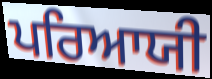
ਪਰਿਆਯੀ